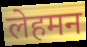
लेहमन